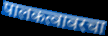
पालकत्वावरचा